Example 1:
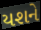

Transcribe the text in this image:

યશને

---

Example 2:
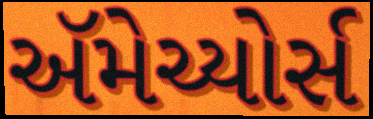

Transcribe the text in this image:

ઍમેચ્યોર્સ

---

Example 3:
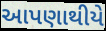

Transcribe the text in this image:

આપણાથીયે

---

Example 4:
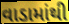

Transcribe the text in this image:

વાડામાંથી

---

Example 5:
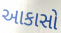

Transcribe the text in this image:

આકાસો